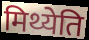
मिथ्येति